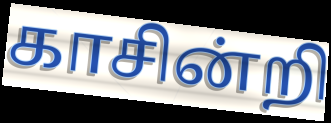
காசின்றி